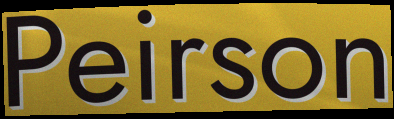
Peirson